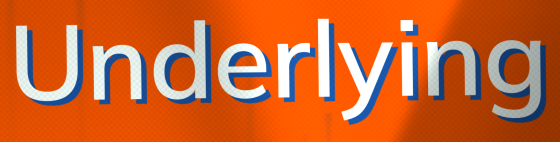
Underlying